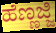
ಹೆಣ್ಣಜ್ಜಿ